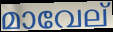
മാവേല്